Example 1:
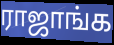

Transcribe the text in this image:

ராஜாங்க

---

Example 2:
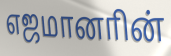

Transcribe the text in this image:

எஜமானரின்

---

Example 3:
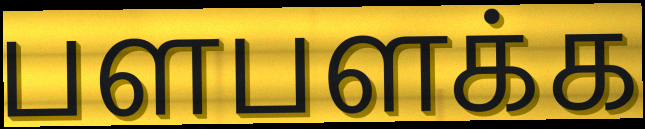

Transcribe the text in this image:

பளபளக்க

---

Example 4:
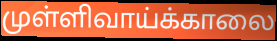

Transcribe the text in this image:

முள்ளிவாய்க்காலை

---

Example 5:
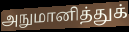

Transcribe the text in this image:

அநுமானித்துக்